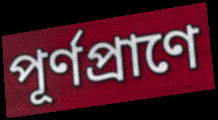
পূর্ণপ্রাণে